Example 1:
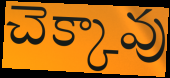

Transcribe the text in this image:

చెక్కావు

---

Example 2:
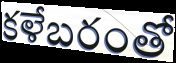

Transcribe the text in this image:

కళేబరంతో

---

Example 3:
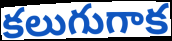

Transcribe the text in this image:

కలుగుగాక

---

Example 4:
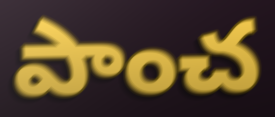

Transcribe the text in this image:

పాంచ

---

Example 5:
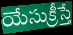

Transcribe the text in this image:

యేసుక్రీస్తే